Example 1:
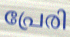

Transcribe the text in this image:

പ്രേരി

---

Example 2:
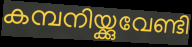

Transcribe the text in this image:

കമ്പനിയ്ക്കുവേണ്ടി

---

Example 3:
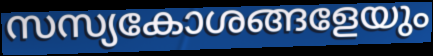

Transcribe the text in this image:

സസ്യകോശങ്ങളേയും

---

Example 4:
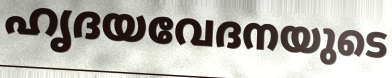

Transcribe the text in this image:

ഹൃദയവേദനയുടെ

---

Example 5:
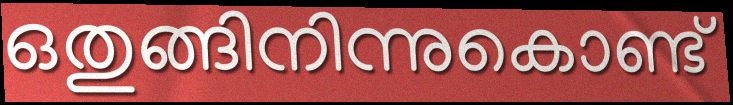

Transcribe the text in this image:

ഒതുങ്ങിനിന്നുകൊണ്ട്